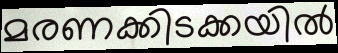
മരണക്കിടക്കയിൽ